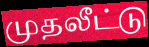
முதலீட்டு